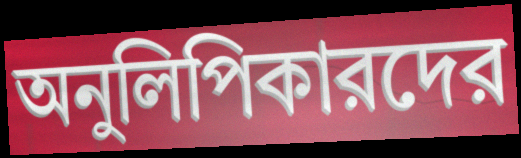
অনুলিপিকারদের